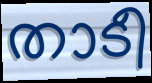
താടീ